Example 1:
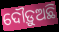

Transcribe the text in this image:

ଦୌଡ଼ୁଅଛି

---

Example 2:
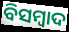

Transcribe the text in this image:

ବିସମ୍ୱାଦ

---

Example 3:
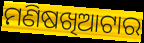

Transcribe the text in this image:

ମଣିଷଖିଆଟାର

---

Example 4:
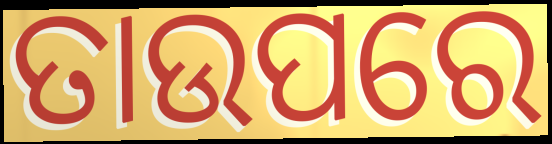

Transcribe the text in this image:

ତାଉପରେ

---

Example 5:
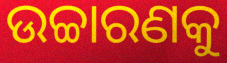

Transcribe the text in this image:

ଉଚ୍ଚାରଣକୁ